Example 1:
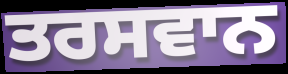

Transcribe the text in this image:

ਤਰਸਵਾਨ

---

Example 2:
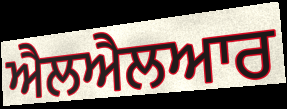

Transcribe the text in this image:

ਐਲਐਲਆਰ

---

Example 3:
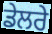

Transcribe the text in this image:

ਡੇਲਰੇ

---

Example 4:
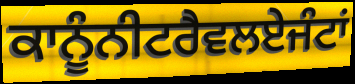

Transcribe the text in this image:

ਕਾਨੂੰਨੀਟਰੈਵਲਏਜੰਟਾਂ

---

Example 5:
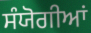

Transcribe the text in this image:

ਸੰਯੋਗੀਆਂ